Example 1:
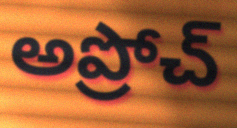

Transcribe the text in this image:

అప్రోచ్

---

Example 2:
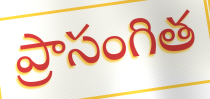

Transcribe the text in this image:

ప్రాసంగిత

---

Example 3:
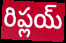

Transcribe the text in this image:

రిప్లయ్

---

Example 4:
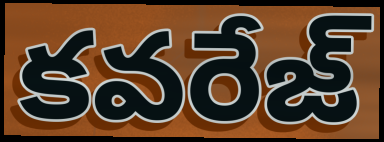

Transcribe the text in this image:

కవరేజ్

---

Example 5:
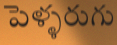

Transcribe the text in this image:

పెళ్ళరుగు